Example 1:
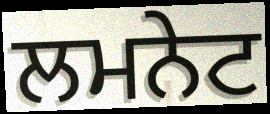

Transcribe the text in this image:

ਲਮਨੇਟ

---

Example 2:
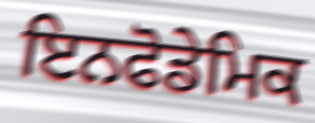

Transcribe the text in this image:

ਇਨਫੋਡੇਮਿਕ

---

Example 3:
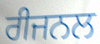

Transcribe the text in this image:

ਰੀਜਨਲ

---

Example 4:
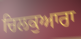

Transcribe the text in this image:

ਚਿਲਕੁਆਰਾ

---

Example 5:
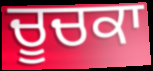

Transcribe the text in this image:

ਚੂਚਕਾ